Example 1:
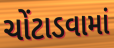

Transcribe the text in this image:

ચોંટાડવામાં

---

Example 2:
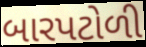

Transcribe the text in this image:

બારપટોળી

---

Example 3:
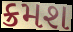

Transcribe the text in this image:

ક્રમશ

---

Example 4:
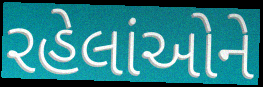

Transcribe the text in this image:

રહેલાંઓને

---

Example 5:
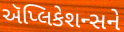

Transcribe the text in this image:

ઍપ્લિકેશન્સને